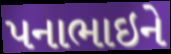
પનાભાઇને